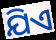
ଯିଏ